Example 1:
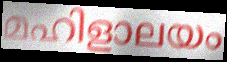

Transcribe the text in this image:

മഹിളാലയം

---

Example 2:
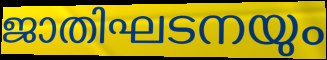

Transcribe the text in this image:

ജാതിഘടനയും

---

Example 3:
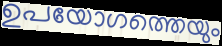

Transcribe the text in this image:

ഉപയോഗത്തെയും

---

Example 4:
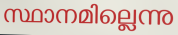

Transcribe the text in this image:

സ്ഥാനമില്ലെന്നു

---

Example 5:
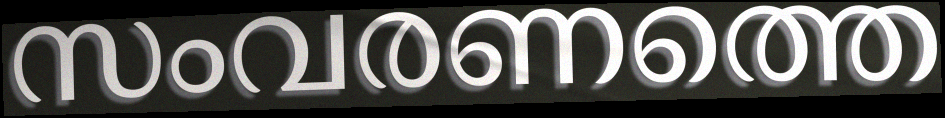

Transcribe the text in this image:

സംവരണത്തെ